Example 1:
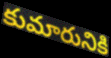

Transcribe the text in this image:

కుమారునికి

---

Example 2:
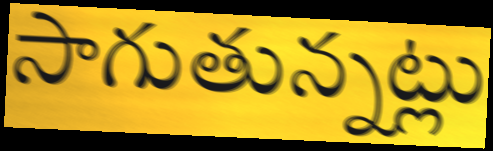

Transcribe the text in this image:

సాగుతున్నట్లు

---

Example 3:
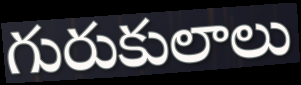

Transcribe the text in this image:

గురుకులాలు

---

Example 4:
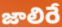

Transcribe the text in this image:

జాలిరే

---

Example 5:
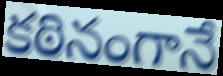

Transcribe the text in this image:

కఠినంగానే